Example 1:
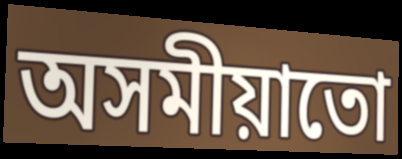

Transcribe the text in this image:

অসমীয়াতো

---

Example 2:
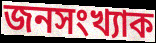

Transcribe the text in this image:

জনসংখ্যাক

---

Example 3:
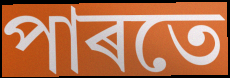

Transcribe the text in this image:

পাৰতে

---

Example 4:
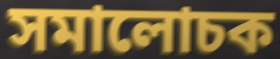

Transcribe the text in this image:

সমালোচক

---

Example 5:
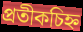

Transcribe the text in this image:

প্ৰতীকচিহ্ন